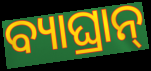
ବ୍ୟାଘ୍ରାନ୍